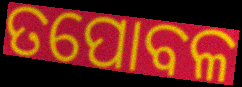
ତପୋବଳ